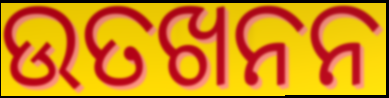
ଉତଖନନ